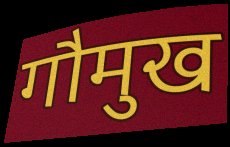
गौमुख